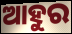
ଆହୁର